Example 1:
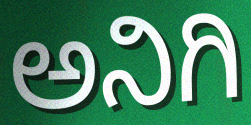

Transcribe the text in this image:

ಅನಿಗಿ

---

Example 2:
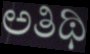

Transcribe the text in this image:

ಅತಿಥಿ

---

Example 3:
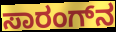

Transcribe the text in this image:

ಸಾರಂಗ್‌ನ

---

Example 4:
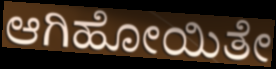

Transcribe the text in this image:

ಆಗಿಹೋಯಿತೇ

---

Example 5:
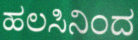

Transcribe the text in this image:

ಹಲಸಿನಿಂದ